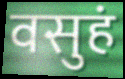
वसुहं